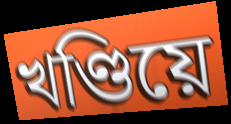
খণ্ডিয়ে